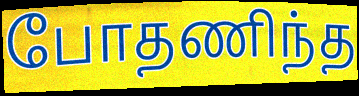
போதணிந்த